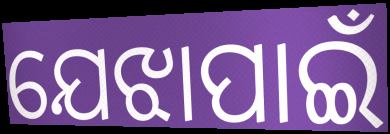
ଯେଝାପାଇଁ